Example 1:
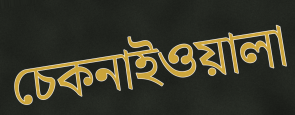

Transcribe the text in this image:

চেকনাইওয়ালা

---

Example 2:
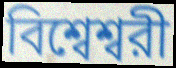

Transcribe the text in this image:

বিশ্বেশ্বরী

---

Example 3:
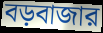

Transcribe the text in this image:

বড়বাজার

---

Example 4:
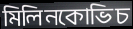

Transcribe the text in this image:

মিলিনকোভিচ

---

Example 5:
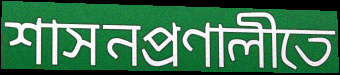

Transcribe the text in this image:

শাসনপ্রণালীতে